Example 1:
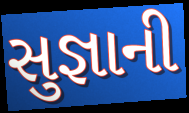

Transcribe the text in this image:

સુજ્ઞાની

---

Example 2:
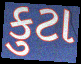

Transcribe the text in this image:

કુટા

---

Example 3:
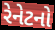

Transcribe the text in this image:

રેનેટનો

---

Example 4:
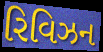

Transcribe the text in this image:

રિવિઝન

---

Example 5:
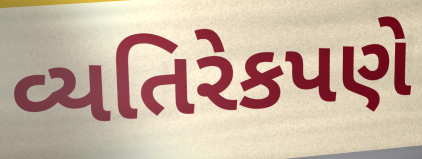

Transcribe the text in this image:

વ્યતિરેકપણે